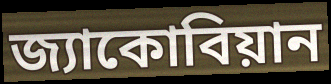
জ্যাকোবিয়ান